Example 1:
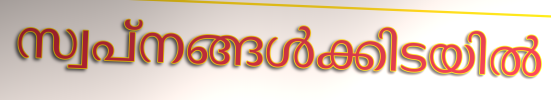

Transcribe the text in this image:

സ്വപ്നങ്ങൾക്കിടയിൽ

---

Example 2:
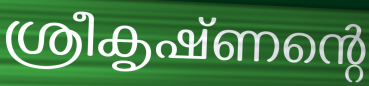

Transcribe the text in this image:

ശ്രീകൃഷ്‌ണന്റെ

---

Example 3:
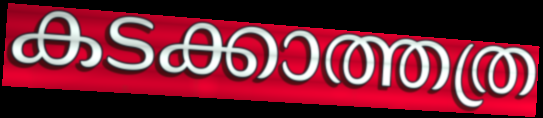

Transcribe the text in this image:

കടക്കാത്തത്ര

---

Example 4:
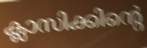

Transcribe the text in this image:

ക്ലാസിക്കിന്റെ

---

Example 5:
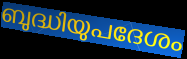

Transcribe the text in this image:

ബുദ്ധിയുപദേശം